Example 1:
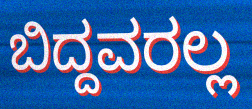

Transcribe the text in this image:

ಬಿದ್ದವರಲ್ಲ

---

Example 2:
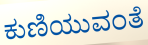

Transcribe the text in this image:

ಕುಣಿಯುವಂತೆ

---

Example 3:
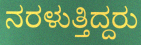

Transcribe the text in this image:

ನರಳುತ್ತಿದ್ದರು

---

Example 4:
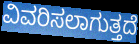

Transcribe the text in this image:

ವಿವರಿಸಲಾಗುತ್ತದೆ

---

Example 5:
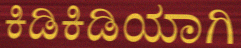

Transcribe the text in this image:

ಕಿಡಿಕಿಡಿಯಾಗಿ